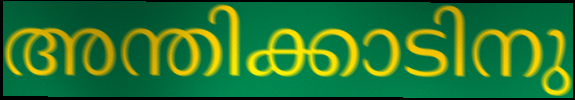
അന്തിക്കാടിനു